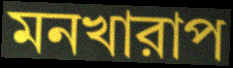
মনখারাপ